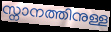
സ്നാനത്തിനുള്ള